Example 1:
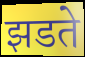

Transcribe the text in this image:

झडते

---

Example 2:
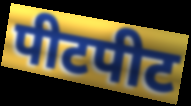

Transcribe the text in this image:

पीटपीट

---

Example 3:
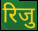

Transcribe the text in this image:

रिजु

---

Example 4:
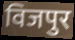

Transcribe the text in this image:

विजपुर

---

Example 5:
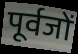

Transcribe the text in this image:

पूर्वजों